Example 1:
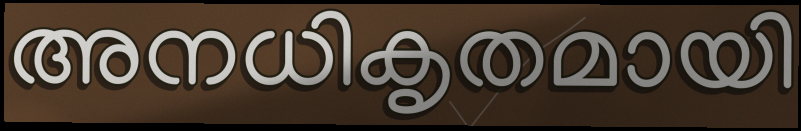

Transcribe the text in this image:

അനധികൃതമായി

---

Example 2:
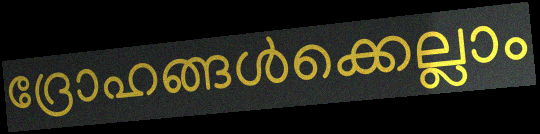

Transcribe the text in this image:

ദ്രോഹങ്ങൾക്കെല്ലാം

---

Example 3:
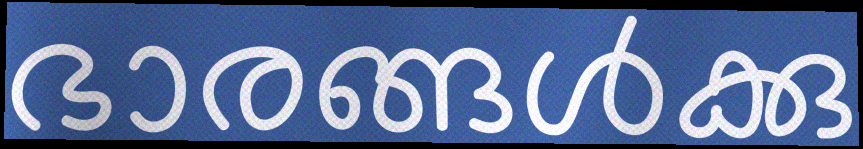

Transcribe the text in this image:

ഭാരങ്ങൾക്കു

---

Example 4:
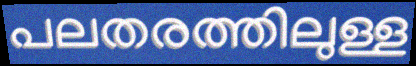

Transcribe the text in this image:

പലതരത്തിലുള്ള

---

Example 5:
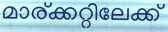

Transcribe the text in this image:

മാര്ക്കറ്റിലേക്ക്